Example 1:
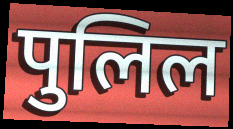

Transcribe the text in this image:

पुलिल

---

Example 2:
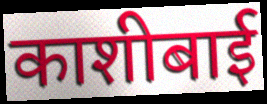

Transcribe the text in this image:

काशीबाई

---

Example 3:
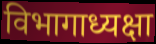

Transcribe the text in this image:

विभागाध्यक्षा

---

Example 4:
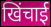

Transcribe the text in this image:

खिंचाई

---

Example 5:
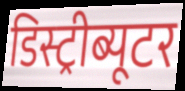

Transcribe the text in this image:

डिस्ट्रीब्यूटर